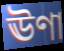
ঊণা